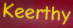
Keerthy